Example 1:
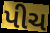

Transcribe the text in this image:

પીચ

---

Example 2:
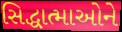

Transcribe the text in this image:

સિદ્ધાત્માઓને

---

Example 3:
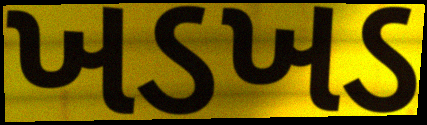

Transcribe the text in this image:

ખડખડ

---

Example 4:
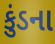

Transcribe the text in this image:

કુંડના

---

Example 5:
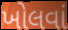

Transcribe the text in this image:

ખોલવાં